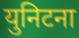
युनिटना